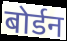
बोर्डन